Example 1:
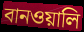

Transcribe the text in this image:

বানওয়ালি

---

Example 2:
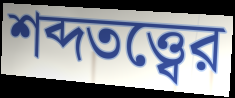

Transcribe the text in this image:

শব্দতত্ত্বের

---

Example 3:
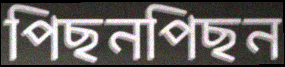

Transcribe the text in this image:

পিছনপিছন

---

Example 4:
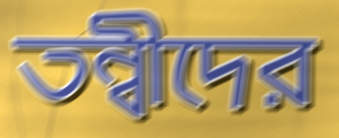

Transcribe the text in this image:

তন্বীদের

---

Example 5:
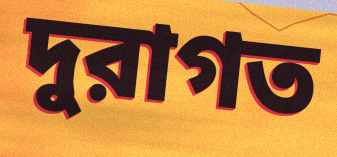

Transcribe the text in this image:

দুরাগত